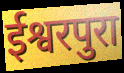
ईश्वरपुरा